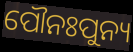
ପୌନଃପୁନ୍ୟ